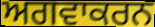
ਅਗਵਾਕਰਨ